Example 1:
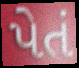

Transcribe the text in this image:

પેતં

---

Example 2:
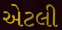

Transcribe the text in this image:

એટલી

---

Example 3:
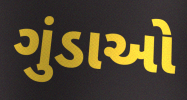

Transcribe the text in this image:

ગુંડાઓ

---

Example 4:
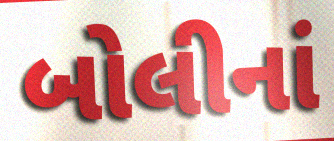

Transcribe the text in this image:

બોલીનાં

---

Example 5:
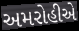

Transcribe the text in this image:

અમરોહીએ